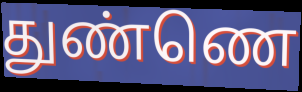
துண்ணெ